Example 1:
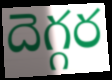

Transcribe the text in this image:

దెగ్గర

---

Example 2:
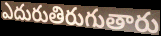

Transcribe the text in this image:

ఎదురుతిరుగుతారు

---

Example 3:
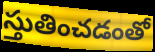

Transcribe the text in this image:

స్తుతించడంతో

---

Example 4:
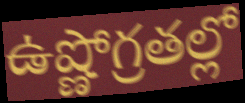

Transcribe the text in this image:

ఉష్ణోగ్రతల్లో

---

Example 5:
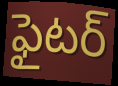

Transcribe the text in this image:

ఫైటర్